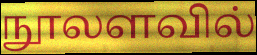
நூலளவில்